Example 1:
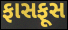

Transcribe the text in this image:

ફાસફૂસ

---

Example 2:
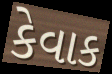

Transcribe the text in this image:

કેવાક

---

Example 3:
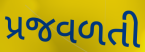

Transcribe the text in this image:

પ્રજવળતી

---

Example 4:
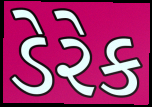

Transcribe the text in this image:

ડેરેક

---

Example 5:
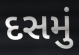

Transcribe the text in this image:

દસમું